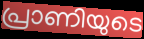
പ്രാണിയുടെ